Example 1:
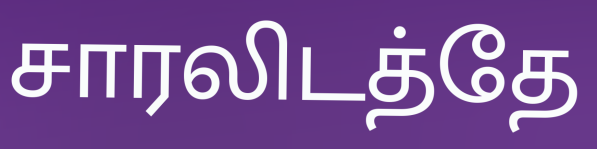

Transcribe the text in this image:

சாரலிடத்தே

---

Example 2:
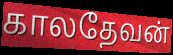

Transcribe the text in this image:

காலதேவன்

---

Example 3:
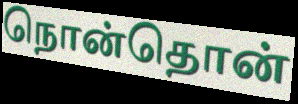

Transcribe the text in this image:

நொன்தொன்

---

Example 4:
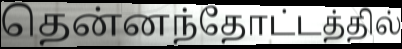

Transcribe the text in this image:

தென்னந்தோட்டத்தில்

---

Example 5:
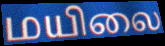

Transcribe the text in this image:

மயிலை